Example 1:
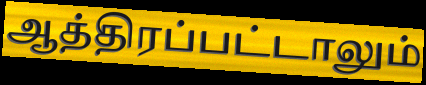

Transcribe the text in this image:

ஆத்திரப்பட்டாலும்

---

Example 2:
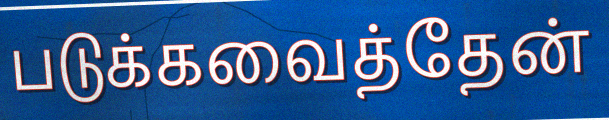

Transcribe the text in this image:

படுக்கவைத்தேன்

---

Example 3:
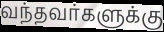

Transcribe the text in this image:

வந்தவர்களுக்கு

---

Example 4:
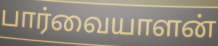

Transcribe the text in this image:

பார்வையாளன்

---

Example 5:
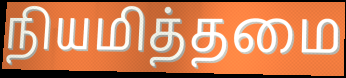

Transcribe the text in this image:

நியமித்தமை